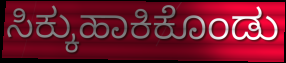
ಸಿಕ್ಕುಹಾಕಿಕೊಂಡು